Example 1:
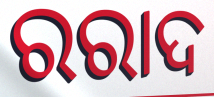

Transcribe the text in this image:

ରରାଦ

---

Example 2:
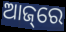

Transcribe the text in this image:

ଆଜ୍‌ରେ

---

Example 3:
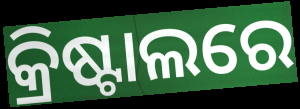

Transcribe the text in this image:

କ୍ରିଷ୍ଟାଲରେ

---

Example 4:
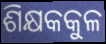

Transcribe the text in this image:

ଶିକ୍ଷକକୁଳ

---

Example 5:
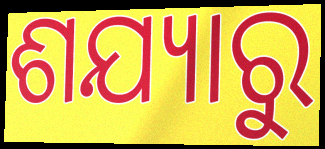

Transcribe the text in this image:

ଶଯ୍ୟାରୁ